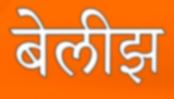
बेलीझ